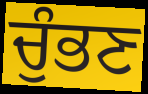
ਚੁੰਭਣ